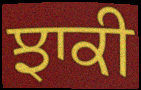
ਝਾਕੀ